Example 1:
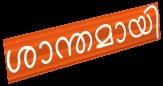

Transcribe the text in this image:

ശാന്തമായി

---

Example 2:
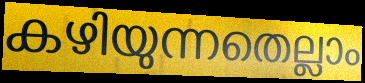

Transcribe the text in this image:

കഴിയുന്നതെല്ലാം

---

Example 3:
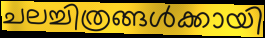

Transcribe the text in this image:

ചലച്ചിത്രങ്ങൾക്കായി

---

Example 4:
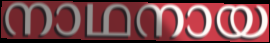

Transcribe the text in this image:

നാഥനായ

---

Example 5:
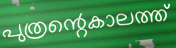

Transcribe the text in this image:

പുത്രന്റെകാലത്ത്